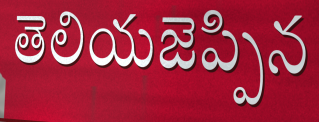
తెలియజెప్పిన